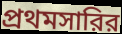
প্রথমসারির